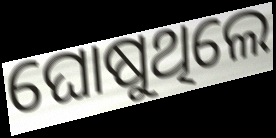
ଘୋଷୁଥିଲେ